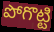
పోగొట్టి